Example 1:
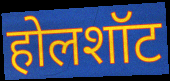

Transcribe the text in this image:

होलशॉट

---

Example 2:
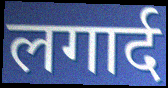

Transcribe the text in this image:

लगार्द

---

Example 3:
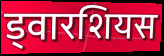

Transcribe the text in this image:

ड्वारशियस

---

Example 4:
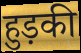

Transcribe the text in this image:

हुड़की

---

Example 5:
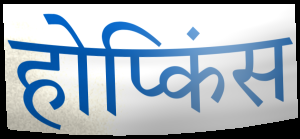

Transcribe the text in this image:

होप्किंस